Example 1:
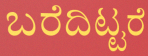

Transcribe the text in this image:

ಬರೆದಿಟ್ಟರೆ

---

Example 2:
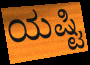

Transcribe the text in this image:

ಯಷ್ಟಿ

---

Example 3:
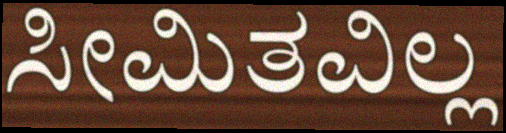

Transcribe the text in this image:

ಸೀಮಿತವಿಲ್ಲ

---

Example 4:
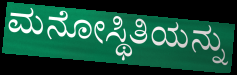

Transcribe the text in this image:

ಮನೋಸ್ಥಿತಿಯನ್ನು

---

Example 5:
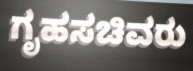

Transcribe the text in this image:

ಗೃಹಸಚಿವರು